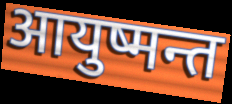
आयुष्मन्त